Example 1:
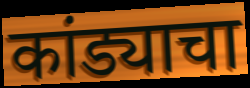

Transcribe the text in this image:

कांड्याचा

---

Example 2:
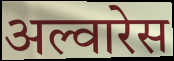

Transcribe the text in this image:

अल्वारेस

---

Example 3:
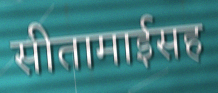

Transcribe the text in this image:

सीतामाईसह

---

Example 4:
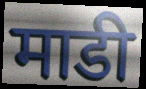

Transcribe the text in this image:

माडी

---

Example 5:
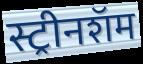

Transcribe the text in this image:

स्ट्रीनशॅम